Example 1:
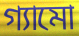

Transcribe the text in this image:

গ্যামো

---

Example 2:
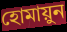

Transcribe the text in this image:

হোমায়ুন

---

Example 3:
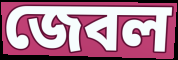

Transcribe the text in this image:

জেবল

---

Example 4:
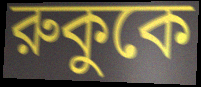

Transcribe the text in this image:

রুকুকে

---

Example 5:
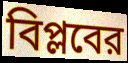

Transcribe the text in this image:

বিপ্লবের